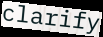
clarify